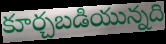
కూర్చబడియున్నది